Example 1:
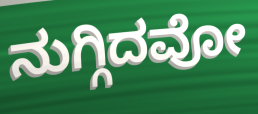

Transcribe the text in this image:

ನುಗ್ಗಿದವೋ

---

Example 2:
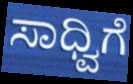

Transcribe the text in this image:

ಸಾಧ್ವಿಗೆ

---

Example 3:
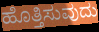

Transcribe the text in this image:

ಹೊತ್ತಿಸುವುದು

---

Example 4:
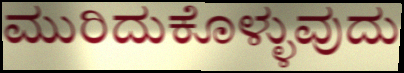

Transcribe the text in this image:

ಮುರಿದುಕೊಳ್ಳುವುದು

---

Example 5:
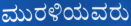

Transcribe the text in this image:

ಮುರಳಿಯವರು